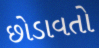
છોડાવતો